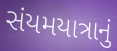
સંયમયાત્રાનું